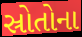
સ્રોતોના